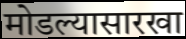
मोडल्यासारखा